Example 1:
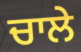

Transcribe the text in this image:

ਚਾਲੇ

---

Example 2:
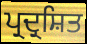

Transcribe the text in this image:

ਪ੍ਰਦ੍ਰਸ਼ਿਤ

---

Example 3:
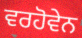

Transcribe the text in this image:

ਵਰਹੋਵੇਨ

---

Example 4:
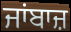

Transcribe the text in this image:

ਜਾਂਬਾਜ਼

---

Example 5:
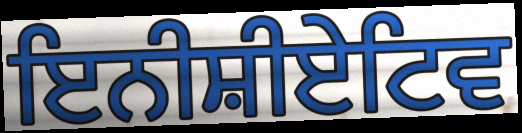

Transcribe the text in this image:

ਇਨੀਸ਼ੀਏਟਿਵ